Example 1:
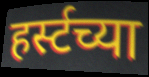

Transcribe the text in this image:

हर्स्टच्या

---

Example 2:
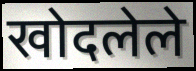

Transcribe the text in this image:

खोदलेले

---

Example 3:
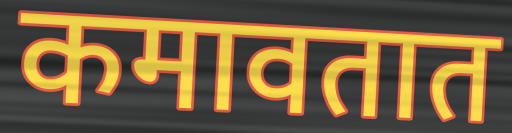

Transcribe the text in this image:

कमावतात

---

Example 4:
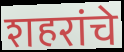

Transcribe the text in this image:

शहरांचे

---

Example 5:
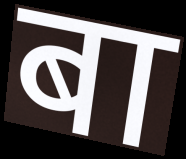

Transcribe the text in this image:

बा